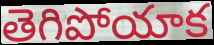
తెగిపోయాక